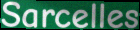
Sarcelles